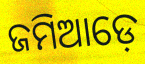
ଜମିଆଡ଼େ